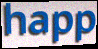
happ